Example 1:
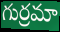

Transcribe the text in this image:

గుర్రమా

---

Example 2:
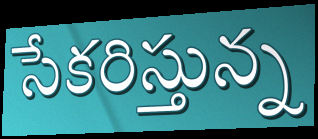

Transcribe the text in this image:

సేకరిస్తున్న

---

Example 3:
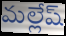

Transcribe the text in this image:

మల్లేష్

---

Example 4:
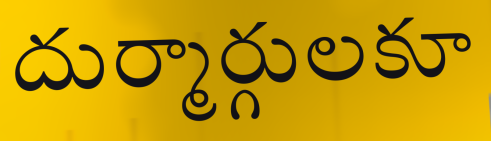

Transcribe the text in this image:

దుర్మార్గులకూ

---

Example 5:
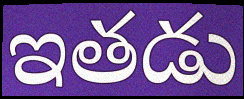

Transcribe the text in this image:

ఇతడు